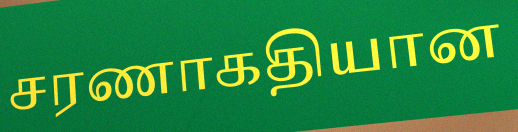
சரணாகதியான